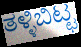
ತಳ್ಳಿಬಿಟ್ಟ